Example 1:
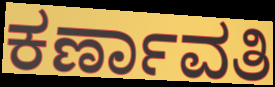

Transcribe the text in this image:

ಕರ್ಣಾವತಿ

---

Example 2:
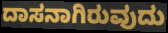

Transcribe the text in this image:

ದಾಸನಾಗಿರುವುದು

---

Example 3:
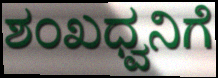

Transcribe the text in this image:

ಶಂಖಧ್ವನಿಗೆ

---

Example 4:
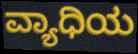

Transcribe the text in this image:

ವ್ಯಾಧಿಯ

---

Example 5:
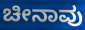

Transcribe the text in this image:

ಚೀನಾವು